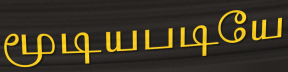
மூடியபடியே